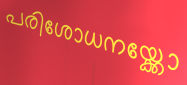
പരിശോധനയ്ക്കോ